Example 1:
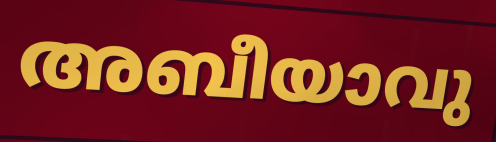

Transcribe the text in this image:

അബീയാവു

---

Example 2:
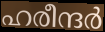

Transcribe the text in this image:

ഹരീന്ദർ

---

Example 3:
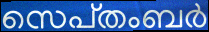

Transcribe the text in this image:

സെപ്‌തംബർ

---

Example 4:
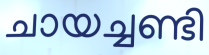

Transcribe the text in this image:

ചായച്ചണ്ടി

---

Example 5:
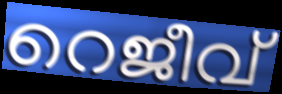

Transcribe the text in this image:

റെജീവ്